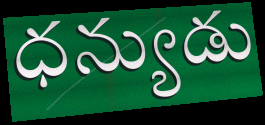
ధన్యుడు